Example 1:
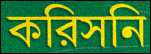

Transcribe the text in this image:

করিসনি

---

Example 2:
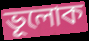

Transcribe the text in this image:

ভূলোক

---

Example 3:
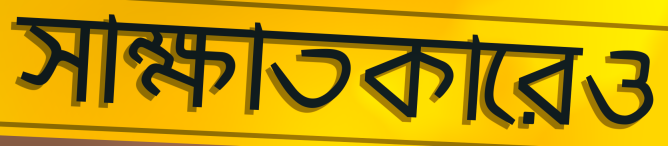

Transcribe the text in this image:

সাক্ষাতকারেও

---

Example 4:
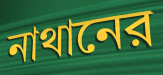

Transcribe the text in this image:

নাথানের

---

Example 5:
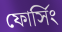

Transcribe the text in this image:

ফোর্সিং